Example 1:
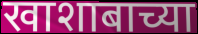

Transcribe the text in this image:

खाशाबाच्या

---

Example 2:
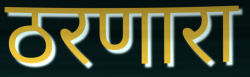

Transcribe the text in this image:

ठरणारा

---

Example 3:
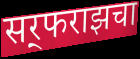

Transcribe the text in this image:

सर्फराझचा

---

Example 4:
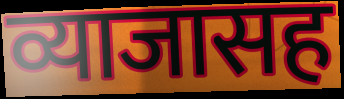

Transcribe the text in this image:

व्याजासह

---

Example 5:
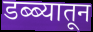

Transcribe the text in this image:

डब्ब्यातून